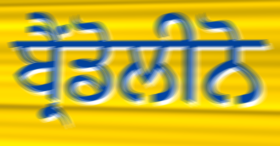
ਬ੍ਰੈਂਡੋਲੀਨੋ